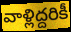
వాళ్లిద్దరికీ